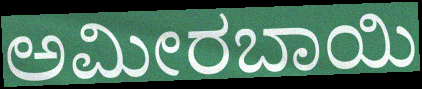
ಅಮೀರಬಾಯಿ